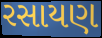
રસાયણ